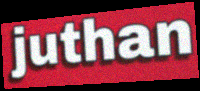
juthan